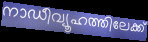
നാഡീവ്യൂഹത്തിലേക്ക്